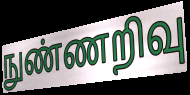
நுண்ணறிவு